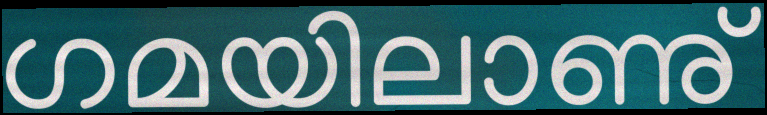
ഗമയിലാണു്